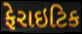
ફેરાઇટિક